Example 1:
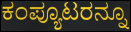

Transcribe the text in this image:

ಕಂಪ್ಯೂಟರನ್ನೂ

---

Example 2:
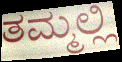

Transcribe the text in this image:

ತಮ್ಮಲ್ಲಿ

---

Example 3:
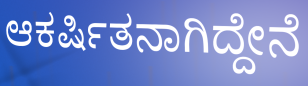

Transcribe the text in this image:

ಆಕರ್ಷಿತನಾಗಿದ್ದೇನೆ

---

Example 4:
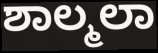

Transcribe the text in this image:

ಶಾಲ್ಮಲಾ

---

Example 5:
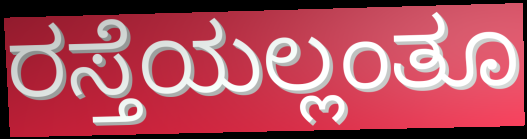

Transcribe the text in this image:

ರಸ್ತೆಯಲ್ಲಂತೂ